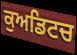
ਕੁਅਡਿਟਚ